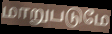
மாறுபடுமே